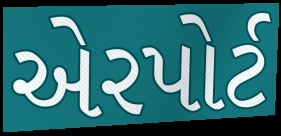
એરપોર્ટ